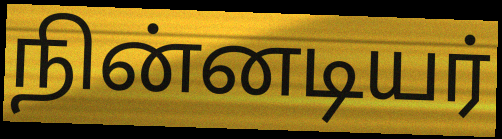
நின்னடியர்